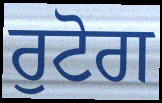
ਰੁਟੋਗ